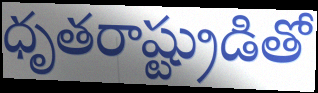
ధృతరాష్ట్రుడితో